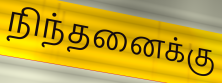
நிந்தனைக்கு